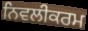
ਨਿਵਲੀਕਰਮ